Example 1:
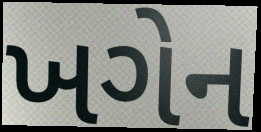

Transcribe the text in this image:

ખગેન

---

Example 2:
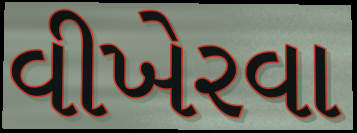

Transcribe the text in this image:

વીખેરવા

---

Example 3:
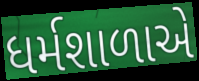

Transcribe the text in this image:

ધર્મશાળાએ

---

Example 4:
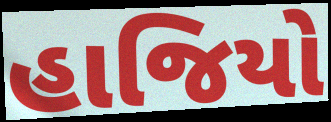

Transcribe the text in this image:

હાજિયો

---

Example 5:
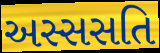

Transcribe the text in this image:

અસ્સસતિ